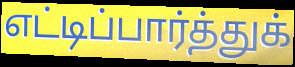
எட்டிப்பார்த்துக்